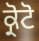
ਕ੍ਰੋਟੋ